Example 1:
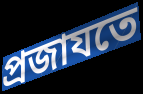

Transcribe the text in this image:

প্রজাযতে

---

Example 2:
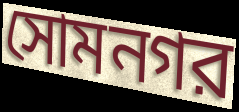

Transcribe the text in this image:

সোমনগর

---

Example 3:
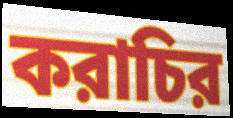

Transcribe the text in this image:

করাচির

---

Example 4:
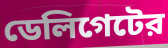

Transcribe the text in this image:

ডেলিগেটের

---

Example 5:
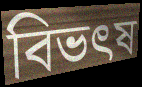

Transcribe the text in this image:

বিভৎষ